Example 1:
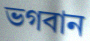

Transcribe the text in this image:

ভগবান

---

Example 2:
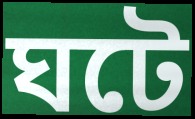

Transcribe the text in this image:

ঘটে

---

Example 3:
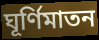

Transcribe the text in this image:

ঘূর্ণিমাতন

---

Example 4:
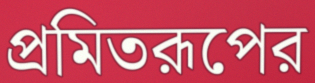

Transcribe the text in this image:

প্রমিতরূপের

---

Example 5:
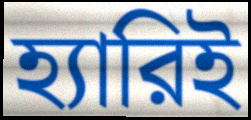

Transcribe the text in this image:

হ্যারিই